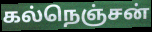
கல்நெஞ்சன்